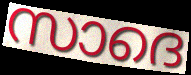
സാദെ